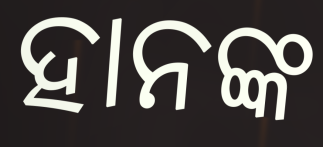
ହାନଙ୍କ